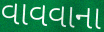
વાવવાના